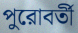
পুরোবর্তী